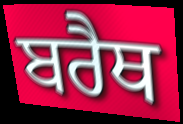
ਬਰੈਥ